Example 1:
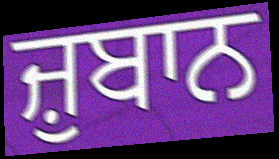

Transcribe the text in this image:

ਜ਼ੁਬਾਨ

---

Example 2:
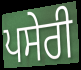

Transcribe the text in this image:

ਪਸੇਰੀ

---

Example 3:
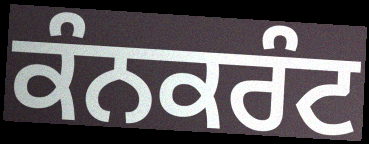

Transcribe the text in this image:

ਕੰਨਕਰੰਟ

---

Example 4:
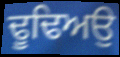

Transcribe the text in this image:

ਢੂਢਿਅਉ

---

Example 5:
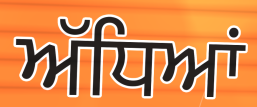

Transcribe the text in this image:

ਅੱਧਿਆਂ